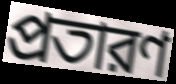
প্রতারণ